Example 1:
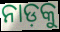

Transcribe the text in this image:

ନାଡ଼କୁ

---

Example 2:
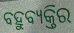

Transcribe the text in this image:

ବହୁବ୍ୟକ୍ତିର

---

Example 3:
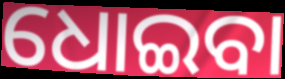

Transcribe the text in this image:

ଧୋଇବା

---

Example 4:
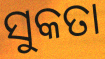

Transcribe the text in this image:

ସୁକତା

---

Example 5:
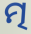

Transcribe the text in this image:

ତ୍ମ